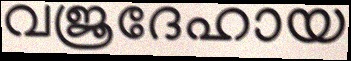
വജ്രദേഹായ